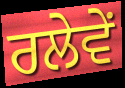
ਰਲੇਵੇਂ